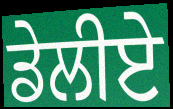
ਡੇਲੀਏ